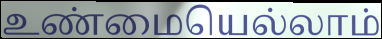
உண்மையெல்லாம்